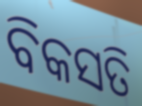
ବିକସତି